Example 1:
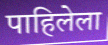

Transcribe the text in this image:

पाहिलेला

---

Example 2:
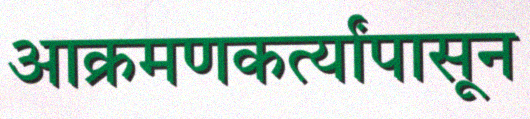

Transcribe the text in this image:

आक्रमणकर्त्यांपासून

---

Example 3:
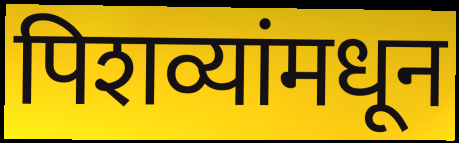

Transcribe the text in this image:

पिशव्यांमधून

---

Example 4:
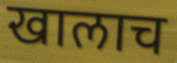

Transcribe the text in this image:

खालाच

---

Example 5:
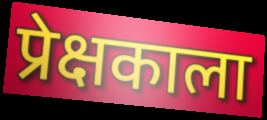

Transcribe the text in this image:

प्रेक्षकाला